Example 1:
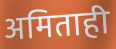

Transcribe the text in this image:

अमिताही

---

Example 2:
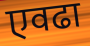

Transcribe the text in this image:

एवढा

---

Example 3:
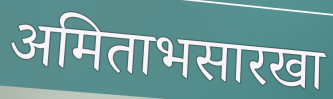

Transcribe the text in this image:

अमिताभसारखा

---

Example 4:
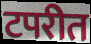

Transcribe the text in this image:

टपरीत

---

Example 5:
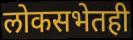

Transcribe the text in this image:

लोकसभेतही